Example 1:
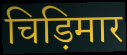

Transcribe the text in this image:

चिड़िमार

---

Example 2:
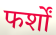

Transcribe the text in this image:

फर्शों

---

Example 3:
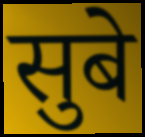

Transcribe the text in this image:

सुबे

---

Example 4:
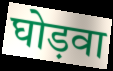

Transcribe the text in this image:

घोड़वा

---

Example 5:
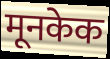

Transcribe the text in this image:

मूनकेक